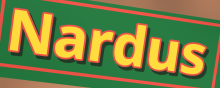
Nardus